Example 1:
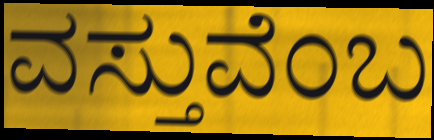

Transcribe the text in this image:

ವಸ್ತುವೆಂಬ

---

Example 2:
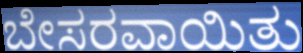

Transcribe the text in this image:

ಬೇಸರವಾಯಿತು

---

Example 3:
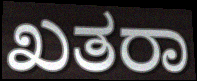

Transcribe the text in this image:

ಖತರಾ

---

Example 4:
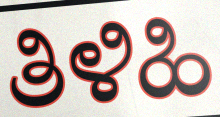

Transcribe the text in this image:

ತಿಳಿಹಿ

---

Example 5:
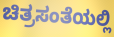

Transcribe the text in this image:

ಚಿತ್ರಸಂತೆಯಲ್ಲಿ